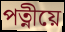
পত্নীয়ে